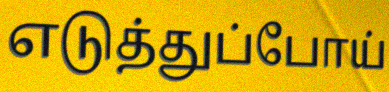
எடுத்துப்போய்